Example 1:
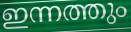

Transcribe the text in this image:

ഇന്നത്തും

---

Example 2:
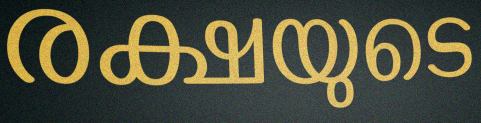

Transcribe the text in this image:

രക്ഷയുടെ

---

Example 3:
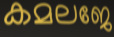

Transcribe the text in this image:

കമലജേ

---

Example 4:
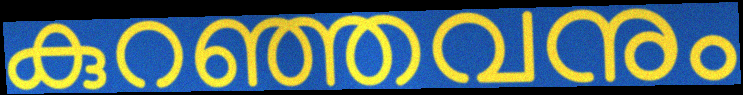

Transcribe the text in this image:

കുറഞ്ഞവനും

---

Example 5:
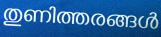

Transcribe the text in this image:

തുണിത്തരങ്ങൾ